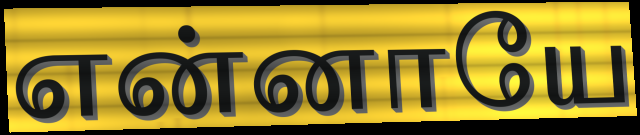
என்னாயே